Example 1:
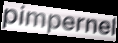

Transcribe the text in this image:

pimpernel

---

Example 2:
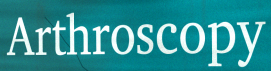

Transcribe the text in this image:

Arthroscopy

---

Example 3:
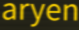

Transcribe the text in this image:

aryen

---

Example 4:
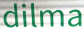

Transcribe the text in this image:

dilma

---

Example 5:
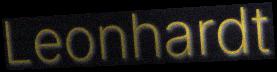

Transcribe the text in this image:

Leonhardt